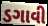
ડગાવી